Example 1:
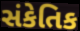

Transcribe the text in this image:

સંકેતિક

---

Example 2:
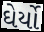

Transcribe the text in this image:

ઘેર્યો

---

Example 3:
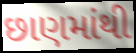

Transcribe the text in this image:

છાણમાંથી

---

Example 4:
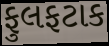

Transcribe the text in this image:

ફુલફટાક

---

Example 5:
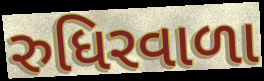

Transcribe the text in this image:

રુધિરવાળા